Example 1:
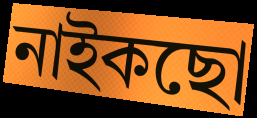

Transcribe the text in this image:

নাইকছো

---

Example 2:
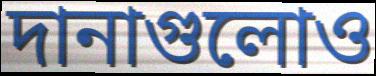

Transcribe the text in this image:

দানাগুলোও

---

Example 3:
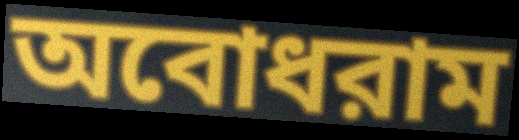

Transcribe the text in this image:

অবোধরাম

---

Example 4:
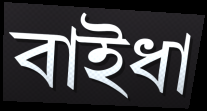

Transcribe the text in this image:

বাইধা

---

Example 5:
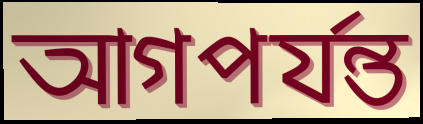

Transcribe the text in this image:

আগপর্যন্ত